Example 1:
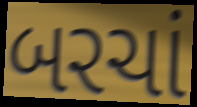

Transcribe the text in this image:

બરચાં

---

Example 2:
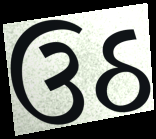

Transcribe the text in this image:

ઉઠ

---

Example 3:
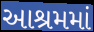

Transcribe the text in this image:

આશ્રમમાં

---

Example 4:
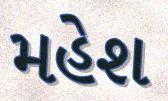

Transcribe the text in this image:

મહેશ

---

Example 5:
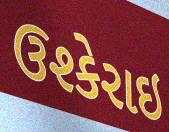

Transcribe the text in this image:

ઉશ્કેરાઇ